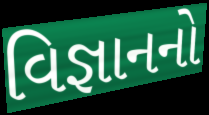
વિજ્ઞાનનો